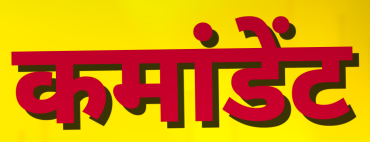
कमांडेंट